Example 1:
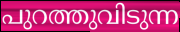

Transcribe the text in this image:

പുറത്തുവിടുന്ന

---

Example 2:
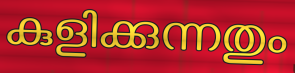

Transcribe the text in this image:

കുളിക്കുന്നതും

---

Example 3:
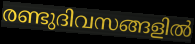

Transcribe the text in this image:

രണ്ടുദിവസങ്ങളിൽ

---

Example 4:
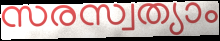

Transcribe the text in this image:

സരസ്വത്യാം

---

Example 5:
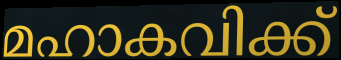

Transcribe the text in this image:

മഹാകവിക്ക്